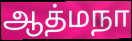
ஆத்மநா